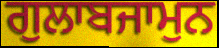
ਗੁਲਾਬਜਾਮੁਨ